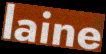
laine